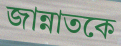
জান্নাতকে